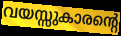
വയസ്സുകാരന്റെ